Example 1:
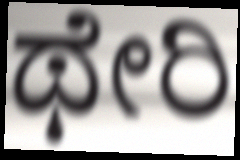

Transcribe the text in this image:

ಥೇರಿ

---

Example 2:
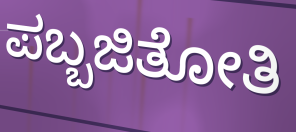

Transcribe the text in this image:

ಪಬ್ಬಜಿತೋತಿ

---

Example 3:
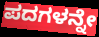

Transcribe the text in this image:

ಪದಗಳನ್ನೇ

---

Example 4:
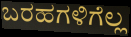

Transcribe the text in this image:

ಬರಹಗಳಿಗೆಲ್ಲ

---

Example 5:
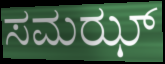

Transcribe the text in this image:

ಸಮಝ್